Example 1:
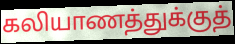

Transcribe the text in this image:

கலியாணத்துக்குத்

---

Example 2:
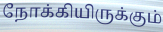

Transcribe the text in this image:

நோக்கியிருக்கும்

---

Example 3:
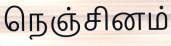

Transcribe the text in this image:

நெஞ்சினம்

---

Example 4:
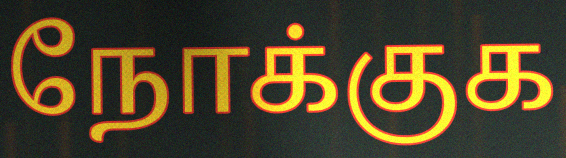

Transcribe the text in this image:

நோக்குக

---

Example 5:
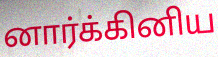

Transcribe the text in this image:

னார்க்கினிய